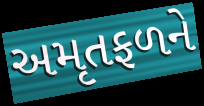
અમૃતફળને